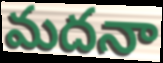
మదనా